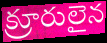
క్రూరులైన